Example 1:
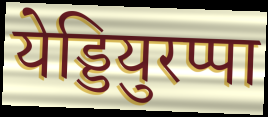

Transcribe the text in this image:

येड्डियुरप्पा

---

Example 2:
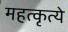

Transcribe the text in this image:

महत्कृत्ये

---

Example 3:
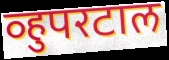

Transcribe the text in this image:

व्हुपरटाल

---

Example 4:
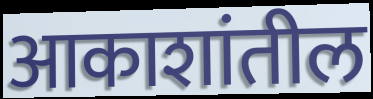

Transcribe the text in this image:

आकाशांतील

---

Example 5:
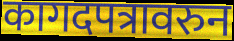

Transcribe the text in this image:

कागदपत्रावरुन